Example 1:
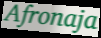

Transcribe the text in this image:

Afronaja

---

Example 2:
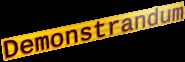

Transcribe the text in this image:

Demonstrandum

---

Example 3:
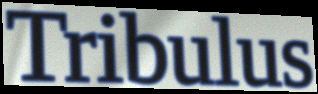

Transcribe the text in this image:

Tribulus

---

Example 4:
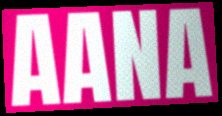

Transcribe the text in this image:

AANA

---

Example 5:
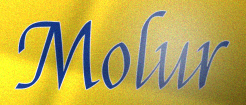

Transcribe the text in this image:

Molur